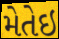
મેતેઇ